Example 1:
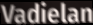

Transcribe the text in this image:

Vadielan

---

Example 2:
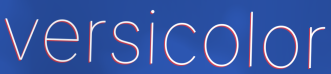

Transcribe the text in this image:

versicolor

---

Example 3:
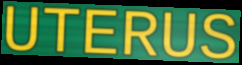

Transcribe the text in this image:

UTERUS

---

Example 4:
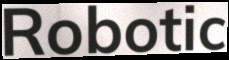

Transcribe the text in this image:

Robotic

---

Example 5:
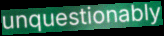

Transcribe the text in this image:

unquestionably